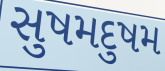
સુષમદુષમ